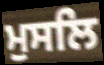
ਮੁਸਲਿ